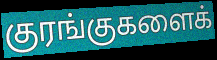
குரங்குகளைக்